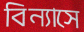
বিন্যাসে